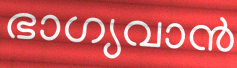
ഭാഗ്യവാൻ